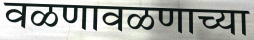
वळणावळणाच्या